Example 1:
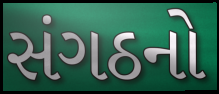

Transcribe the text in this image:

સંગઠનો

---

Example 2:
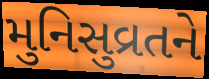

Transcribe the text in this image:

મુનિસુવ્રતને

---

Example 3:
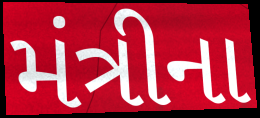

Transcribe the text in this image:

મંત્રીના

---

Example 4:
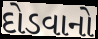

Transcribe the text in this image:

દોડવાનો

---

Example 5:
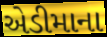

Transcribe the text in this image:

એડીમાના